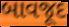
બાવજૂદ